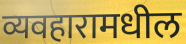
व्यवहारामधील